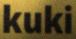
kuki